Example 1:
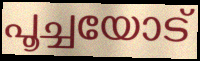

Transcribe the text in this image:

പൂച്ചയോട്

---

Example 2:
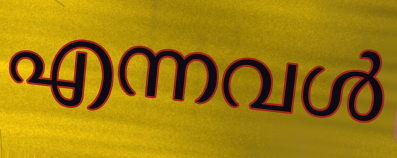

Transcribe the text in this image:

എന്നവൾ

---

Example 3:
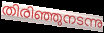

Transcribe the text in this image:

തിരിഞ്ഞുനടന്നു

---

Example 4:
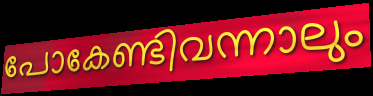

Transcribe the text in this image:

പോകേണ്ടിവന്നാലും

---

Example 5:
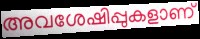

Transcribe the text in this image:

അവശേഷിപ്പുകളാണ്